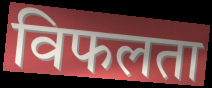
विफलता